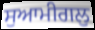
ਸੁਆਮੀਗਲੁ